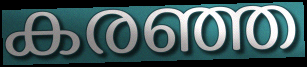
കരഞ്ഞ